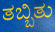
ತಬ್ಬಿತು